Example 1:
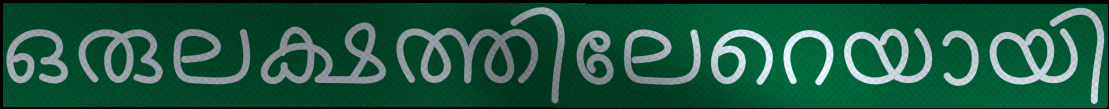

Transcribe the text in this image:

ഒരുലക്ഷത്തിലേറെയായി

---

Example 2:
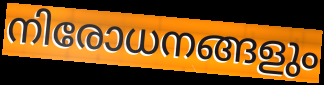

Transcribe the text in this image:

നിരോധനങ്ങളും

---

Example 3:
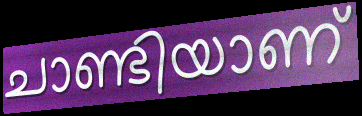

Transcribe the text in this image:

ചാണ്ടിയാണ്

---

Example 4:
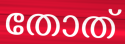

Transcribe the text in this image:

തോത്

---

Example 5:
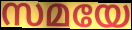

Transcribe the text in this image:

സമയേ